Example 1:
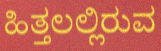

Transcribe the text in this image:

ಹಿತ್ತಲಲ್ಲಿರುವ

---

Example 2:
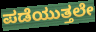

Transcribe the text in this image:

ಪಡೆಯುತ್ತಲೇ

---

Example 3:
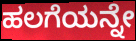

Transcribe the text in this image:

ಹಲಗೆಯನ್ನೇ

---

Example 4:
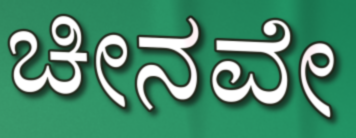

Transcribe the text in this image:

ಚೀನವೇ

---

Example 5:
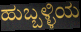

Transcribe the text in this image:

ಹುಬ್ಬಳ್ಳಿಯ